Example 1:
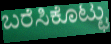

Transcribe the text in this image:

ಬರೆಸಿಕೊಟ್ಟು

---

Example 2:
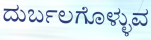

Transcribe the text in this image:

ದುರ್ಬಲಗೊಳ್ಳುವ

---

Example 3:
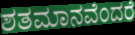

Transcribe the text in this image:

ಶತಮಾನವೆಂದರೆ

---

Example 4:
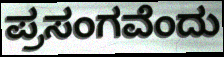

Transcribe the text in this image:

ಪ್ರಸಂಗವೆಂದು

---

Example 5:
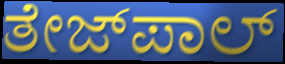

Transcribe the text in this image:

ತೇಜ್‌ಪಾಲ್